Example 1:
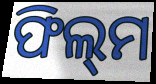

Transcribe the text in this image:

ଫିଲ୍‌ମ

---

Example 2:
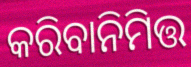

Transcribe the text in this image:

କରିବାନିମିତ୍ତ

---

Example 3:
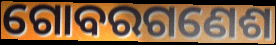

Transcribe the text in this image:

ଗୋବରଗଣେଶ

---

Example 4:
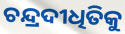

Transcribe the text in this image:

ଚନ୍ଦ୍ରଦୀଧିତିକୁ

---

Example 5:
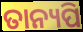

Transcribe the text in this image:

ତାନ୍ୟପି